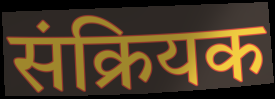
संक्रियक